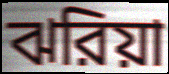
ঝরিয়া